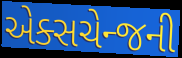
એક્સચેન્જની